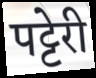
पट्टेरी